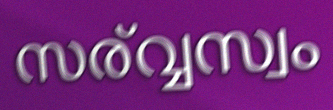
സര്വ്വസ്വം